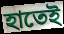
হাতেই